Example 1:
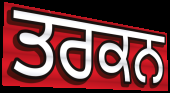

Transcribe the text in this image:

ਤਰਕਨ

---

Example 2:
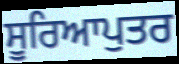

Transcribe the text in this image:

ਸੂਰਿਆਪੁਤਰ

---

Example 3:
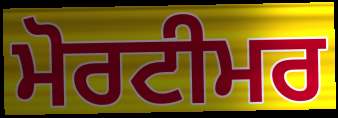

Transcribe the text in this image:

ਮੋਰਟੀਮਰ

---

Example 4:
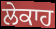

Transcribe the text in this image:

ਲੇਕਾਹ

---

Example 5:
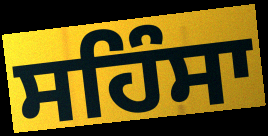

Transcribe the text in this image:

ਸਹਿੰਸਾ